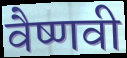
वैष्णवी